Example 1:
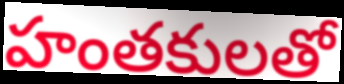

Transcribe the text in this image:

హంతకులతో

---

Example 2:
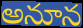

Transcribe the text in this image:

అనూన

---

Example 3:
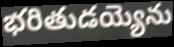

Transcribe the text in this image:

భరితుడయ్యెను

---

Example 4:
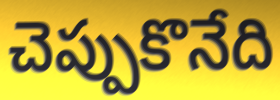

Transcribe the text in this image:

చెప్పుకొనేది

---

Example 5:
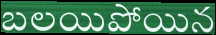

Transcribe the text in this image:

బలయిపోయిన